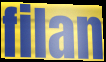
filan